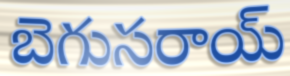
బెగుసరాయ్